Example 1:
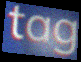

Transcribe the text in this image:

tag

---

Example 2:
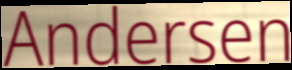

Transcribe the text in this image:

Andersen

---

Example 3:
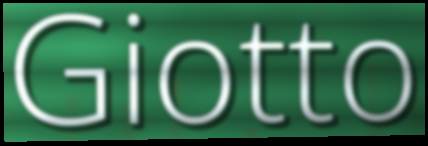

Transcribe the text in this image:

Giotto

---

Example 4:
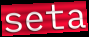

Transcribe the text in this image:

seta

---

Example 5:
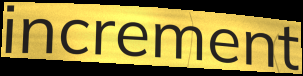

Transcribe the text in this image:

increment